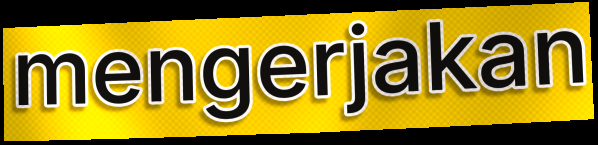
mengerjakan